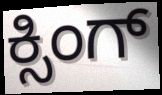
ಕ್ಸಿಂಗ್